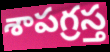
శాపగ్రస్త